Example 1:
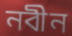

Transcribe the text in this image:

নবীন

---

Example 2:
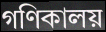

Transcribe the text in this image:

গণিকালয়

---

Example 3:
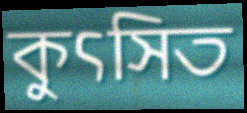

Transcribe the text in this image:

কুৎসিত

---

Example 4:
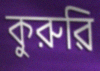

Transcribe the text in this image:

কুৰুৱি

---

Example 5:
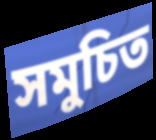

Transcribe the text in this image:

সমুচিত